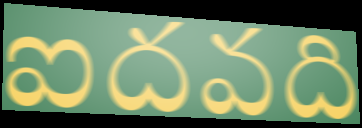
ఐదవది